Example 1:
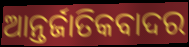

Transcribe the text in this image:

ଆନ୍ତର୍ଜାତିକବାଦର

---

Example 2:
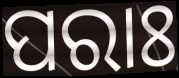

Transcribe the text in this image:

ପରାଃ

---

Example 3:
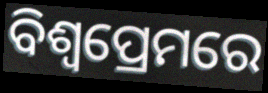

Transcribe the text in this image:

ବିଶ୍ୱପ୍ରେମରେ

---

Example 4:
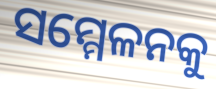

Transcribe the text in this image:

ସମ୍ମେଳନକୁ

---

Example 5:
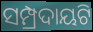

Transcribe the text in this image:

ସମ୍ପ୍ରଦାୟଟି